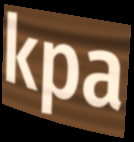
kpa